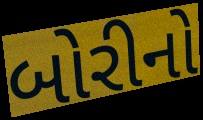
બોરીનો